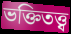
ভক্তিতত্ত্ব